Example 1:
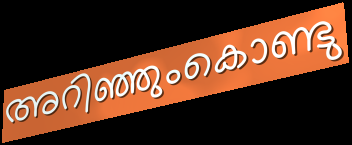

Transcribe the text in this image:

അറിഞ്ഞുംകൊണ്ടു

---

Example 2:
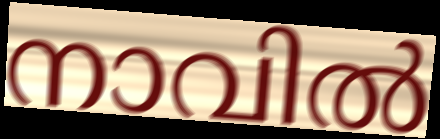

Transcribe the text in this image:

നാവിൽ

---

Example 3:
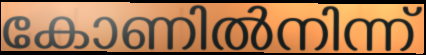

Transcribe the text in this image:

കോണിൽനിന്ന്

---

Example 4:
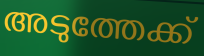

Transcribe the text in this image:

അടുത്തേക്ക്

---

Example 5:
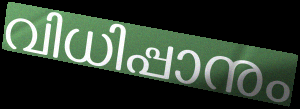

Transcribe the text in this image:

വിധിപ്പാനും